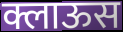
क्लाऊस